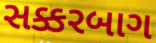
સક્કરબાગ